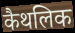
कैथलिक